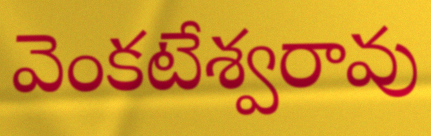
వెంకటేశ్వరావు